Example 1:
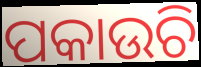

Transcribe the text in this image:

ପକାଉଚି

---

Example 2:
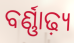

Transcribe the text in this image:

ବର୍ଣ୍ଣାଢ଼୍ୟ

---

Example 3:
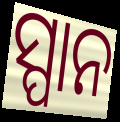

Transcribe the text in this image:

ସ୍ପାନ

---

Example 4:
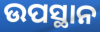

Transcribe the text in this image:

ଉପସ୍ଥାନ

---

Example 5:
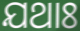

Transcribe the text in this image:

ଯଥାଃ